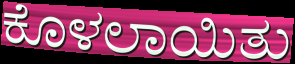
ಕೊಳಲಾಯಿತು